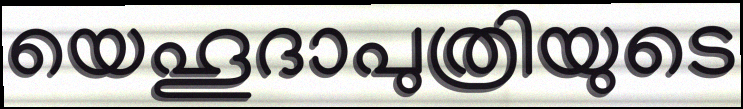
യെഹൂദാപുത്രിയുടെ